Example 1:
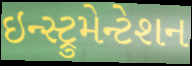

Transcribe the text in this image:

ઇન્સ્ટ્રુમેન્ટેશન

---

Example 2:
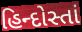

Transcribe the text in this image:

હિન્દોસ્તાં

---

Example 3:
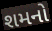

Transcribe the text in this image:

શમનો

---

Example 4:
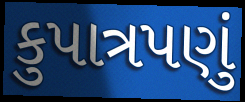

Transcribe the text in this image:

કુપાત્રપણું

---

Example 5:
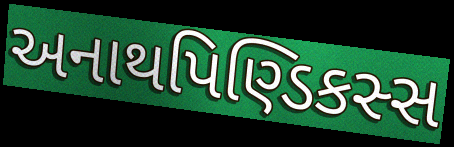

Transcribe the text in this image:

અનાથપિણ્ડિકસ્સ